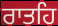
ਰਾਤਹਿ